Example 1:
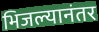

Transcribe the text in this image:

भिजल्यानंतर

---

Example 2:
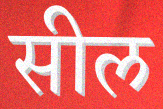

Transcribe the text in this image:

सील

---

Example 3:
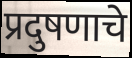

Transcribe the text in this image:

प्रदुषणाचे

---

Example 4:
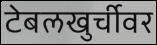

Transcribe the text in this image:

टेबलखुर्चीवर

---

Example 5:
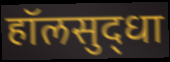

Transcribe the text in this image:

हॉलसुद्धा